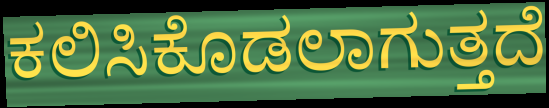
ಕಲಿಸಿಕೊಡಲಾಗುತ್ತದೆ